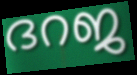
ദറജ